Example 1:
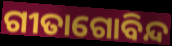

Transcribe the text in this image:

ଗୀତାଗୋବିନ୍ଦ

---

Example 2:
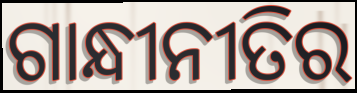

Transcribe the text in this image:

ଗାନ୍ଧୀନୀତିର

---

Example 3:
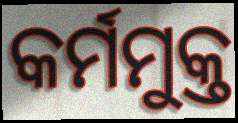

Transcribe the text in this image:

କର୍ମମୁକ୍ତ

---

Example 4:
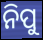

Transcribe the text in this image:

ନିପୁ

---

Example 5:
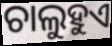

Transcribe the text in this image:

ଚାଲୁହୁଏ